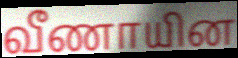
வீணாயின